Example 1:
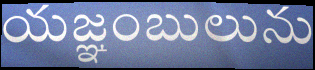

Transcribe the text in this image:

యజ్ఞంబులును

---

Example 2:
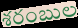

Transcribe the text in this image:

శరంబుల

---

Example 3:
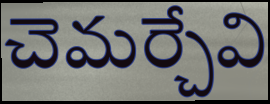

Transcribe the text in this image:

చెమర్చేవి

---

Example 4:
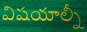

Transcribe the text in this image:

విషయాల్నీ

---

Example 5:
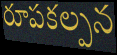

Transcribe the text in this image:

రూపకల్పన